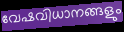
വേഷവിധാനങ്ങളും